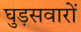
घुड़सवारों